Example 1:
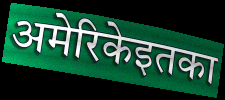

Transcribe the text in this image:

अमेरिकेइतका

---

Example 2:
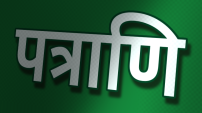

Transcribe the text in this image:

पत्राणि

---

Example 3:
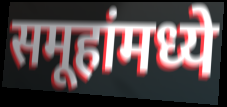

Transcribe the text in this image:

समूहांमध्ये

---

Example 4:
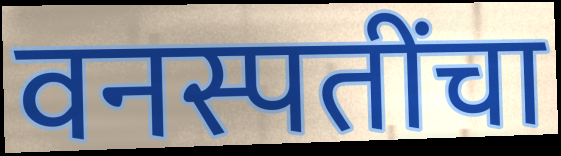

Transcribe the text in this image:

वनस्पतींचा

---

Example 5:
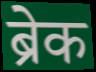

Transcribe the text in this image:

ब्रेक